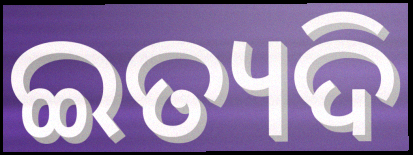
ଇତ୍ୟଦି